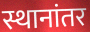
स्थानांतर